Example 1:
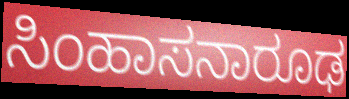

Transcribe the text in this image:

ಸಿಂಹಾಸನಾರೂಢ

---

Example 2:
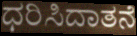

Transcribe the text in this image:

ಧರಿಸಿದಾತನೆ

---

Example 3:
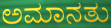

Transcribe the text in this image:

ಅಮಾನತು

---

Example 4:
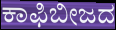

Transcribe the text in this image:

ಕಾಫಿಬೀಜದ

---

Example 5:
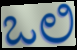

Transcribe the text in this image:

ಒಲಿ